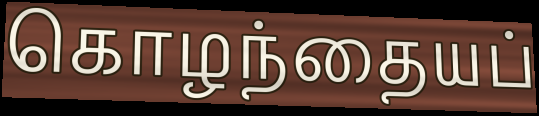
கொழந்தையப்